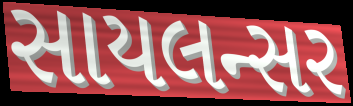
સાયલન્સર